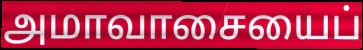
அமாவாசையைப்